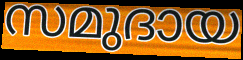
സമുദായ